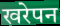
खरेपन